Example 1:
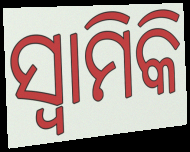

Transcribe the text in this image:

ସ୍ୱାମିକି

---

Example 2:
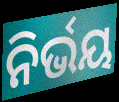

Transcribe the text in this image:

ନିର୍ଭୟ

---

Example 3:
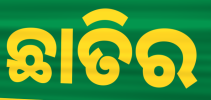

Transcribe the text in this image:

ଛାତିର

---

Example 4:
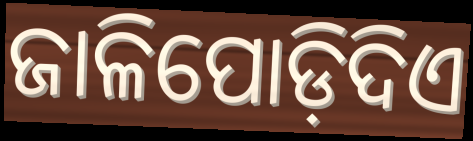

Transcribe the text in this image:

ଜାଳିପୋଡ଼ିଦିଏ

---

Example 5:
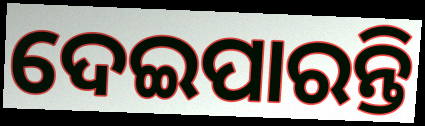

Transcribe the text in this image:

ଦେଇପାରନ୍ତି